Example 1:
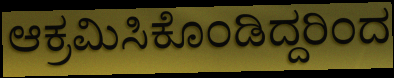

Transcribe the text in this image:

ಆಕ್ರಮಿಸಿಕೊಂಡಿದ್ದರಿಂದ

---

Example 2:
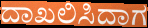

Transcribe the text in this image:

ದಾಖಲಿಸಿದಾಗ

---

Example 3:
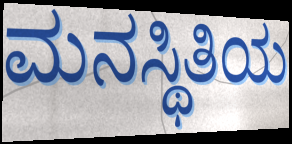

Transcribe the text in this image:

ಮನಸ್ಥಿತಿಯ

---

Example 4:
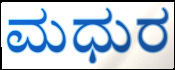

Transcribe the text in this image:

ಮಧುರ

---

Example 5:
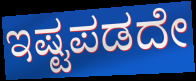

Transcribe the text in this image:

ಇಷ್ಟಪಡದೇ